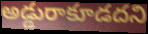
అడ్డురాకూడదని